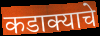
कडाक्याचे